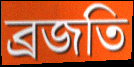
ব্রজতি